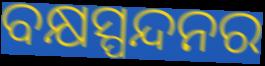
ବକ୍ଷସ୍ପନ୍ଦନର